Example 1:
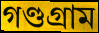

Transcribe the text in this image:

গণ্ডগ্রাম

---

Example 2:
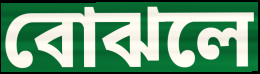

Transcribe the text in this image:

বোঝলে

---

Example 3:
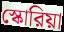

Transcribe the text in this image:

স্কোরিয়া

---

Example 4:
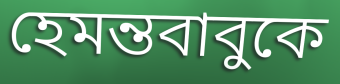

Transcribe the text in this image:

হেমন্তবাবুকে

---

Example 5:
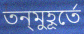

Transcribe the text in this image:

তন্‌মুহূর্তে